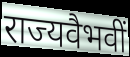
राज्यवैभवीं